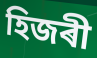
হিজৰী